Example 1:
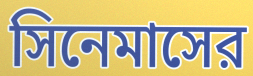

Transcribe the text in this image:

সিনেমাসের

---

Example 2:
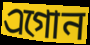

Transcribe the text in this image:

এগোন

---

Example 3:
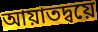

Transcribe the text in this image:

আয়াতদ্বয়ে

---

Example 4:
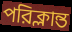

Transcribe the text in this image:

পরিক্লান্ত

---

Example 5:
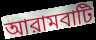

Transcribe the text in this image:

আরামবাটি